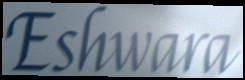
Eshwara